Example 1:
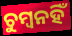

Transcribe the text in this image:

ଚୁମ୍ବନହିଁ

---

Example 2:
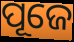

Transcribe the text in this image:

ପୂଜେ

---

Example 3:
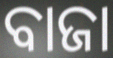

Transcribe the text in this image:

ବାଜା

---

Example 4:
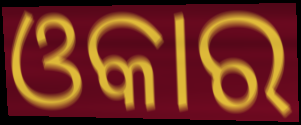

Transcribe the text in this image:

ଓକାର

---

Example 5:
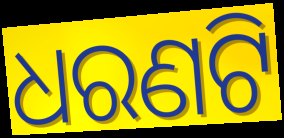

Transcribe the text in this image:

ଧରଣଟି